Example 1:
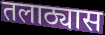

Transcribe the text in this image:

तलाठ्यास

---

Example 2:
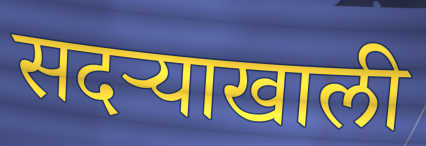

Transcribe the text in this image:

सदऱ्याखाली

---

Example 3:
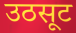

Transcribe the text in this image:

उठसूट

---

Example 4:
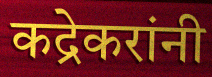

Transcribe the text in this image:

कद्रेकरांनी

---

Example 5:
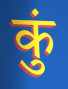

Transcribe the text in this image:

कुं